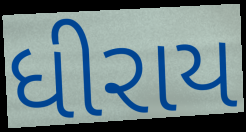
ધીરાય